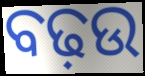
ବଢ଼ଉ